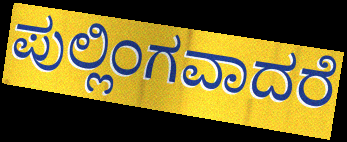
ಪುಲ್ಲಿಂಗವಾದರೆ